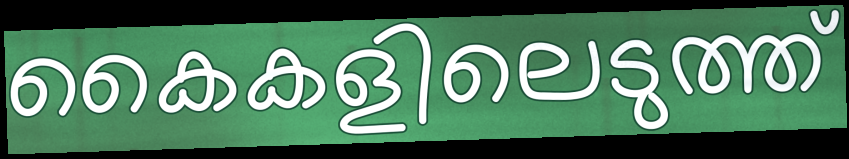
കൈകളിലെടുത്ത്